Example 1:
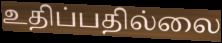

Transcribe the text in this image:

உதிப்பதில்லை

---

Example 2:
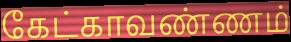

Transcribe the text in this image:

கேட்காவண்ணம்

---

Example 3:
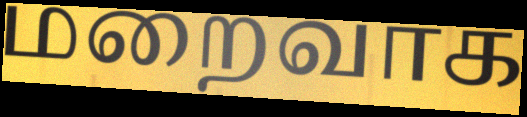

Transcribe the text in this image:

மறைவாக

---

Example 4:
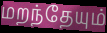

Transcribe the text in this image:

மறந்தேயும்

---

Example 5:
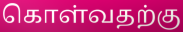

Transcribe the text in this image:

கொள்வதற்கு